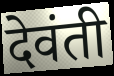
देवंती